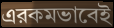
এরকমভাবেই